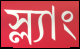
স্ল্যাং